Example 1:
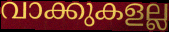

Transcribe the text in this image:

വാക്കുകളല്ല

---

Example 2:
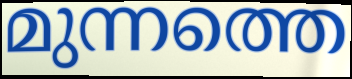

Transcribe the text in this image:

മുന്നത്തെ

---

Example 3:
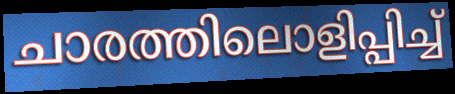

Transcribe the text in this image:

ചാരത്തിലൊളിപ്പിച്ച്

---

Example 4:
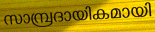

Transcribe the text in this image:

സാമ്പ്രദായികമായി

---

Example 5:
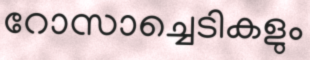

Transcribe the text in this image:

റോസാച്ചെടികളും